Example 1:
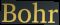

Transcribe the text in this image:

Bohr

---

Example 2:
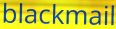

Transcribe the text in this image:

blackmail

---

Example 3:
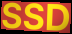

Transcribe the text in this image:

SSD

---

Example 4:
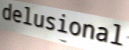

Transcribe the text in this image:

delusional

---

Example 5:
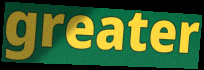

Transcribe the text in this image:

greater